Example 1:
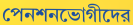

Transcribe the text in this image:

পেনশনভোগীদের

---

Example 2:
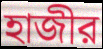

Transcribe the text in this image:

হাজীর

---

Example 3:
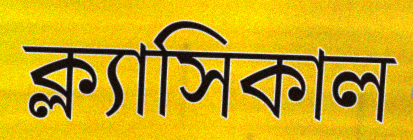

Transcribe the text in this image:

ক্ল্যাসিকাল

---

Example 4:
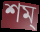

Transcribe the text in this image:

শম্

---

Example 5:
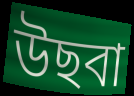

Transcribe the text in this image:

উছবা